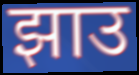
झाउ